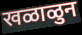
खळाळुन